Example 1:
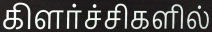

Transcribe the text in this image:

கிளர்ச்சிகளில்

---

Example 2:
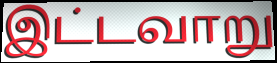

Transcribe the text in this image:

இட்டவாறு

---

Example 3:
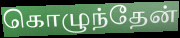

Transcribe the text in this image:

கொழுந்தேன்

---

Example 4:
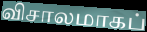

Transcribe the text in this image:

விசாலமாகப்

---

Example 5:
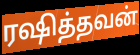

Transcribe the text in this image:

ரஷித்தவன்